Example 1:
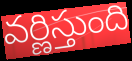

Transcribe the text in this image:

వర్ణిస్తుంది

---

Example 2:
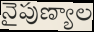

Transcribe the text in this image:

నైపుణ్యాల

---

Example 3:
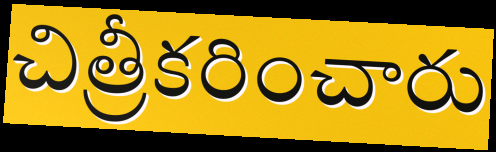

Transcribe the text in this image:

చిత్రీకరించారు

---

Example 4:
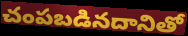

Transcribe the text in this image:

చంపబడినదానితో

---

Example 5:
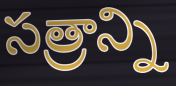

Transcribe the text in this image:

సత్రాన్ని